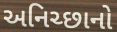
અનિચ્છાનો